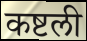
कष्टली